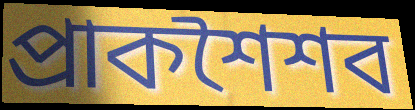
প্রাকশৈশব